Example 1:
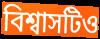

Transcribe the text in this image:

বিশ্বাসটিও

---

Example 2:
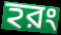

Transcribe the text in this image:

হরং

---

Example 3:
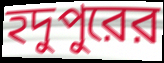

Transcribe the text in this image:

হদুপুরের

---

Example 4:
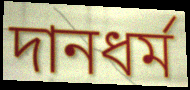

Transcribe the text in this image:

দানধর্ম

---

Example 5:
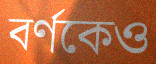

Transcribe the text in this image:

বর্ণকেও